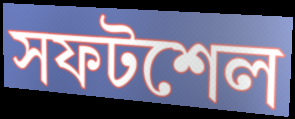
সফটশেল